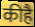
कीहै